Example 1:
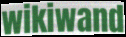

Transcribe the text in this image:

wikiwand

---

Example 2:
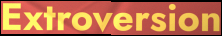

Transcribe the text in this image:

Extroversion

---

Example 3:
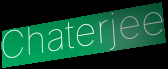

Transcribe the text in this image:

Chaterjee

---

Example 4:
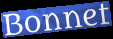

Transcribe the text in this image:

Bonnet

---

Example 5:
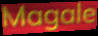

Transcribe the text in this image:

Magale